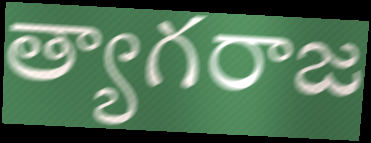
త్యాగరాజ